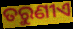
ତରୁଣୀଏ